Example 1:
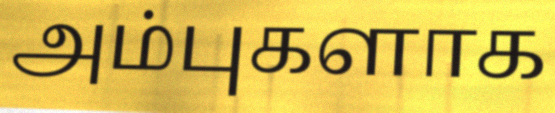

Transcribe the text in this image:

அம்புகளாக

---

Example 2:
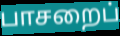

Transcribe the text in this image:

பாசறைப்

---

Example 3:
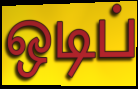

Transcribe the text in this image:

ஒடிப்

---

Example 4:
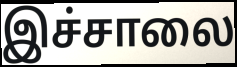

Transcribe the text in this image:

இச்சாலை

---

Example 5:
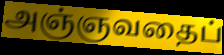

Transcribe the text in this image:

அஞ்ஞவதைப்